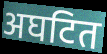
अघटित